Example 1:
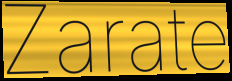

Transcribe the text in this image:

Zarate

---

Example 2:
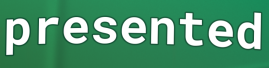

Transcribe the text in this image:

presented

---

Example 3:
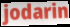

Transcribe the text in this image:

jodarin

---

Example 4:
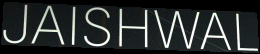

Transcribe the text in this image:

JAISHWAL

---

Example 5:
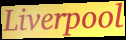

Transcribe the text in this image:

Liverpool